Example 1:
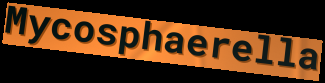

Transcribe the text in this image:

Mycosphaerella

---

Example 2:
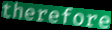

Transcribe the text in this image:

therefore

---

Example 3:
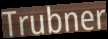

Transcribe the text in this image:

Trubner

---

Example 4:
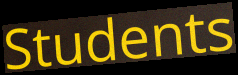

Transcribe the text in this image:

Students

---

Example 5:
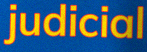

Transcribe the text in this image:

judicial